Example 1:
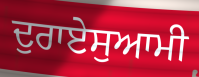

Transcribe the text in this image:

ਦੁਰਾਏਸੁਆਮੀ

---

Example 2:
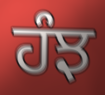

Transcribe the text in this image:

ਹੰਝ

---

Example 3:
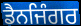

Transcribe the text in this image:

ਡੈਨਜਿੰਗਰ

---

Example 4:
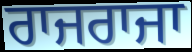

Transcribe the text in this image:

ਰਾਜਰਾਜਾ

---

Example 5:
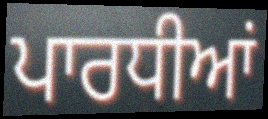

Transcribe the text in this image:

ਪਾਰਧੀਆਂ